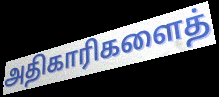
அதிகாரிகளைத்